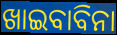
ଖାଇବାବିନା